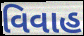
વિવાહ